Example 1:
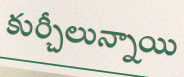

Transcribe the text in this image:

కుర్చీలున్నాయి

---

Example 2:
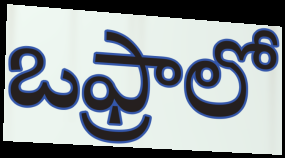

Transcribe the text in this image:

ఒఫ్రాలో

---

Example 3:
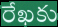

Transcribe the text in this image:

రేఖకు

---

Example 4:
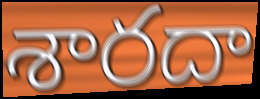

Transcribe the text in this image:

శారదా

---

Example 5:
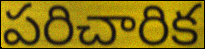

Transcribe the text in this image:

పరిచారిక